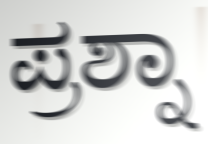
ಪ್ರಶ್ನಾ